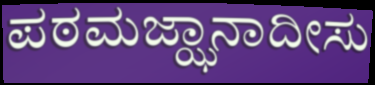
ಪಠಮಜ್ಝಾನಾದೀಸು